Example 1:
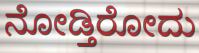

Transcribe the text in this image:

ನೋಡ್ತಿರೋದು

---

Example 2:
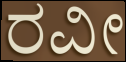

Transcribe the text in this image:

ರವೀ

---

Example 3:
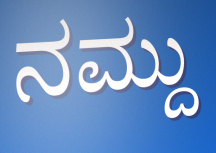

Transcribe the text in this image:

ನಮ್ದು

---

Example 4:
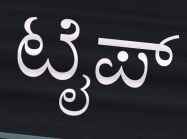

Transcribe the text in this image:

ಟೈಪ್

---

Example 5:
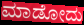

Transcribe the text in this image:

ಮಾಡೋದು